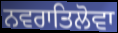
ਨਵਰਾਤਿਲੋਵਾ